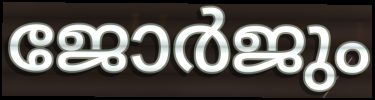
ജോർജും